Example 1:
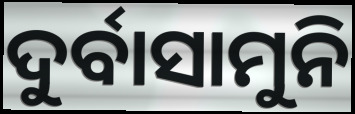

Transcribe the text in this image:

ଦୁର୍ବାସାମୁନି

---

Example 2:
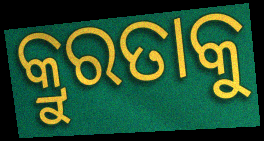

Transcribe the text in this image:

କ୍ରୁରତାକୁ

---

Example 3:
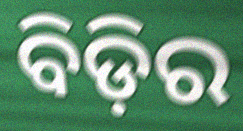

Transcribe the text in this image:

ବିଡ଼ିର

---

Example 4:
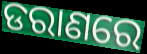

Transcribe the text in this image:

ଡରାଣରେ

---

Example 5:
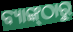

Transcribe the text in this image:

ବ୍ୟାଙ୍କ୍‌ଠାରୁ